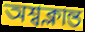
অশ্বক্লান্ত